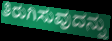
ತಿರುಗಿಸುವುದನ್ನು